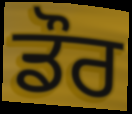
ਡੌਰ